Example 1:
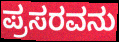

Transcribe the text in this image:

ಪ್ರಸರವನು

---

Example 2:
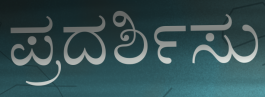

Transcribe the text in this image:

ಪ್ರದರ್ಶಿಸು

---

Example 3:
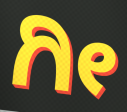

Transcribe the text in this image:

ಗೀ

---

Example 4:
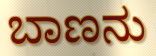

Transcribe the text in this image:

ಬಾಣನು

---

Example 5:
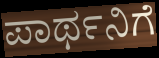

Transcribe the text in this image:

ಪಾರ್ಥನಿಗೆ